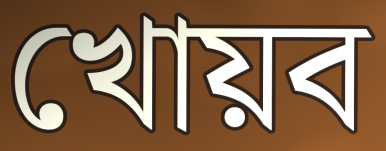
খোয়ব